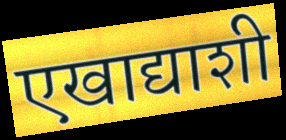
एखाद्याशी